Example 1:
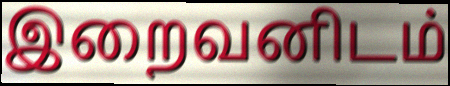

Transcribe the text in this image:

இறைவனிடம்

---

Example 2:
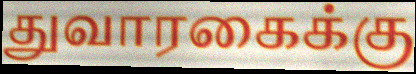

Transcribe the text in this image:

துவாரகைக்கு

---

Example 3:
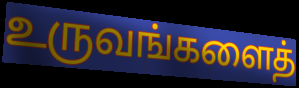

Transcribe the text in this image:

உருவங்களைத்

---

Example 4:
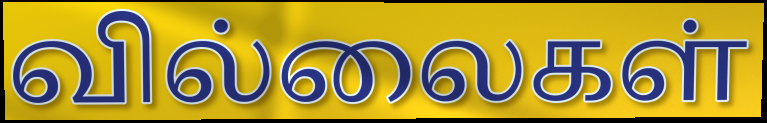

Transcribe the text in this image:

வில்லைகள்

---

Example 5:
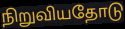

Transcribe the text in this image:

நிறுவியதோடு